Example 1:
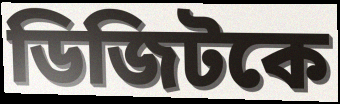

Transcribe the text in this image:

ডিজিটকে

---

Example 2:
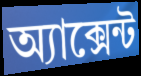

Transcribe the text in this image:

অ্যাক্সেন্ট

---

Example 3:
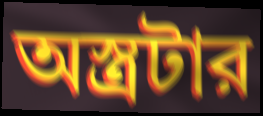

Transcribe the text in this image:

অস্ত্রটার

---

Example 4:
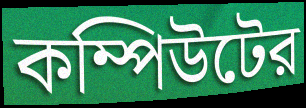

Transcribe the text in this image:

কম্পিউটের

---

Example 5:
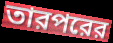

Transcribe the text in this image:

তারপরের